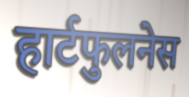
हार्टफुलनेस